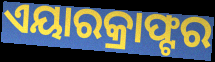
ଏୟାରକ୍ରାଫ୍ଟର